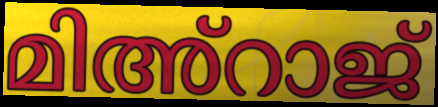
മിഅ്റാജ്